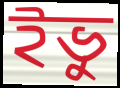
ইভু